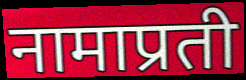
नामाप्रती